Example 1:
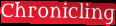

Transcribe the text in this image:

Chronicling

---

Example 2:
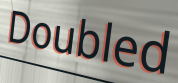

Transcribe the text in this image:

Doubled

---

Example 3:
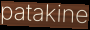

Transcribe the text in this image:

patakine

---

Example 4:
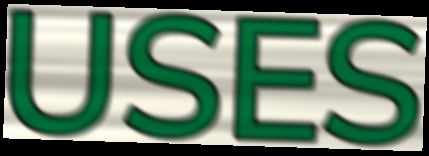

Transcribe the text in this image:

USES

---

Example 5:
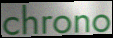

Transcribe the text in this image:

chrono